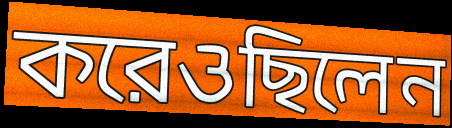
করেওছিলেন